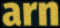
arn